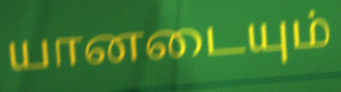
யானடையும்